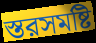
স্তরসমষ্টি